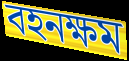
বহনক্ষম